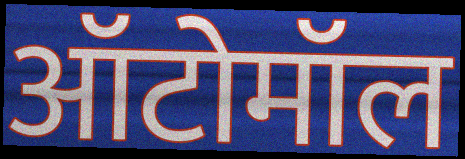
ऑटोमॉल